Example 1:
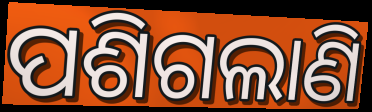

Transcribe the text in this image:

ପଶିଗଲାଣି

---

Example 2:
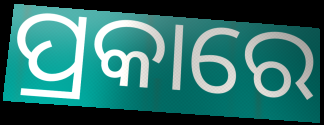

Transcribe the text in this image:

ପ୍ରକାରେ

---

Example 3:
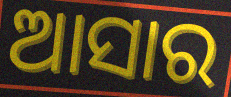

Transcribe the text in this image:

ଆସାର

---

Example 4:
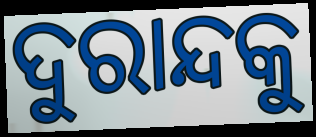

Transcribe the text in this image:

ଦୁରାନ୍ଦକୁ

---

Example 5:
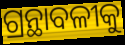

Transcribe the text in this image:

ଗ୍ରନ୍ଥାବଳୀକୁ